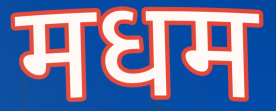
मधम